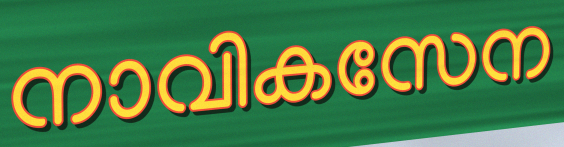
നാവികസേന